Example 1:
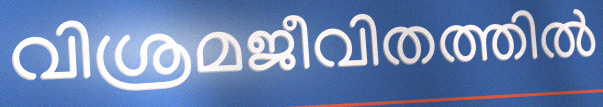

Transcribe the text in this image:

വിശ്രമജീവിതത്തിൽ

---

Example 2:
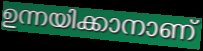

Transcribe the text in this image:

ഉന്നയിക്കാനാണ്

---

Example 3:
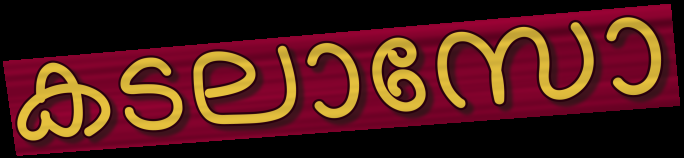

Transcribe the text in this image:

കടലാസോ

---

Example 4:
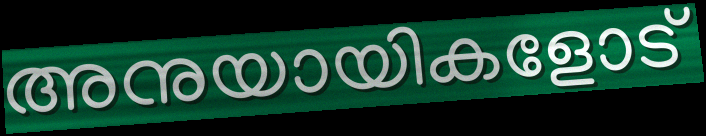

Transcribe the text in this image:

അനുയായികളോട്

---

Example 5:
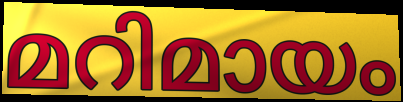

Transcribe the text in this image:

മറിമായം